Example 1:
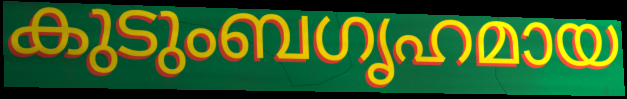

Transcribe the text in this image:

കുടുംബഗൃഹമായ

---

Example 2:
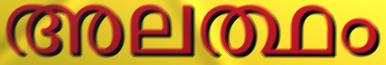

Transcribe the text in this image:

അലത്ഥം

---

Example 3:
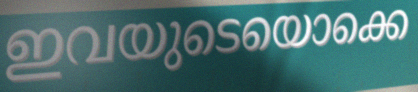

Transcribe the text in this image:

ഇവയുടെയൊക്കെ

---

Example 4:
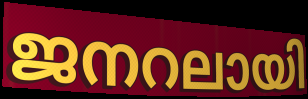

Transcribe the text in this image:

ജനറലായി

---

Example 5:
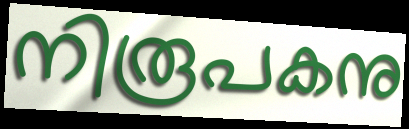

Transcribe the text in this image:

നിരൂപകനു